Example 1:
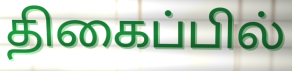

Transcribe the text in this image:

திகைப்பில்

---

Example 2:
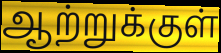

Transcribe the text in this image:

ஆற்றுக்குள்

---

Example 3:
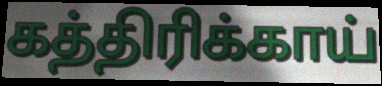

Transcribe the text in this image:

கத்திரிக்காய்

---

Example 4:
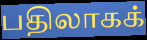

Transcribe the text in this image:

பதிலாகக்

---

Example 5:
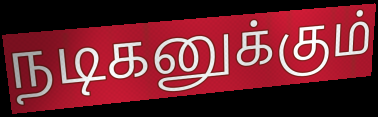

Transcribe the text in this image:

நடிகனுக்கும்